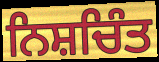
ਨਿਸ਼ਚਿੰਤ